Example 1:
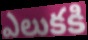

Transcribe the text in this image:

ఎలుకకి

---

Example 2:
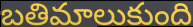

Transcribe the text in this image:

బతిమాలుకుంది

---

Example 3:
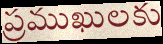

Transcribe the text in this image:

ప్రముఖులకు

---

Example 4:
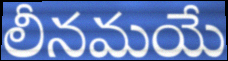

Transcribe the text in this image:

లీనమయే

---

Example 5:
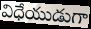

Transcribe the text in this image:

విధేయుడుగా